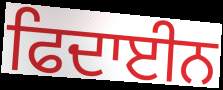
ਫਿਦਾਈਨ